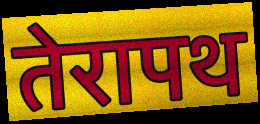
तेरापथ